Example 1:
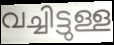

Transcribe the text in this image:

വച്ചിട്ടുള്ള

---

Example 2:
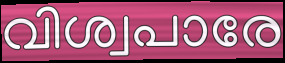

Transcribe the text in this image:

വിശ്വപാരേ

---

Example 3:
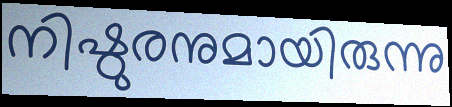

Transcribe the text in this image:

നിഷ്ഠുരനുമായിരുന്നു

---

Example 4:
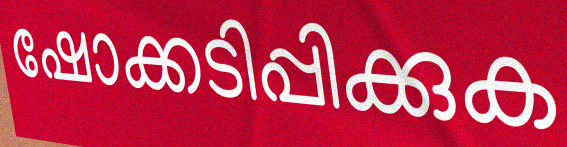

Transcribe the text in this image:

ഷോക്കടിപ്പിക്കുക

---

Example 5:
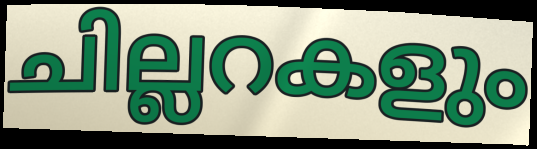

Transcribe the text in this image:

ചില്ലറകളും